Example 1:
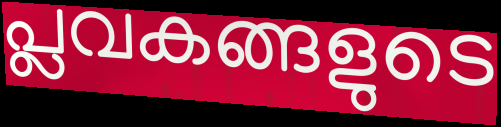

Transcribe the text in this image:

പ്ലവകങ്ങളുടെ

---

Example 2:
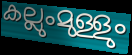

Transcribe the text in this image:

കല്ലുംമുള്ളും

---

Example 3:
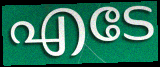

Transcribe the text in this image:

എടേ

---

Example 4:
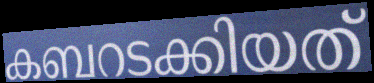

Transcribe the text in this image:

കബറടക്കിയത്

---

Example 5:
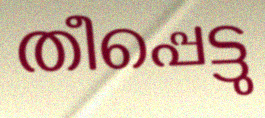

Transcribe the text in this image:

തീപ്പെട്ടു